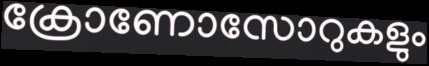
ക്രോണോസോറുകളും